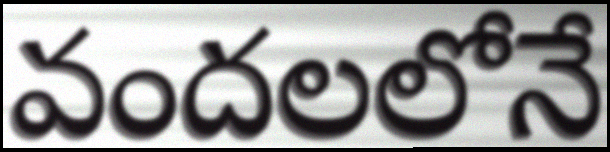
వందలలోనే